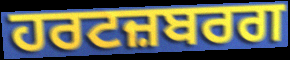
ਹਰਟਜ਼ਬਰਗ